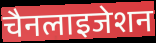
चैनलाइजेशन